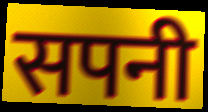
सपनी